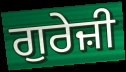
ਗੁਰੇਜ਼ੀ